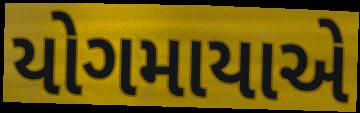
યોગમાયાએ